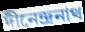
দীনেন্দ্রনাথ